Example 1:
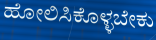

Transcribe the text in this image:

ಹೋಲಿಸಿಕೊಳ್ಳಬೇಕು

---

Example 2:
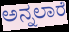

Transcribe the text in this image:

ಅನ್ನಲಾರೆ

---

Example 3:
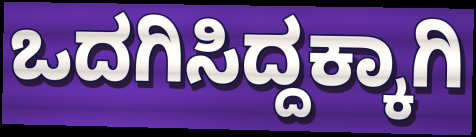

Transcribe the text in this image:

ಒದಗಿಸಿದ್ದಕ್ಕಾಗಿ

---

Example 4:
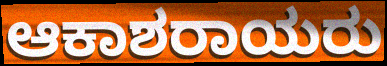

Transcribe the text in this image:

ಆಕಾಶರಾಯರು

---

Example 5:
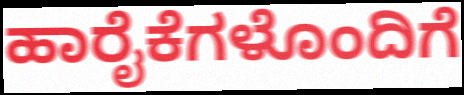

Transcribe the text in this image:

ಹಾರೈಕೆಗಳೊಂದಿಗೆ